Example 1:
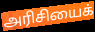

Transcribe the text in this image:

அரிசியைக்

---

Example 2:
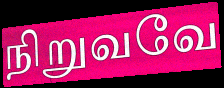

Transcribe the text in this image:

நிறுவவே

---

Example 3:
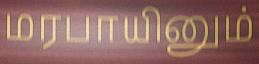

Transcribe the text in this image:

மரபாயினும்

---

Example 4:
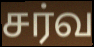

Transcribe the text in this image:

சர்வ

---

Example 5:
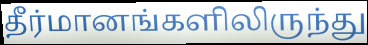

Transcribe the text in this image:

தீர்மானங்களிலிருந்து